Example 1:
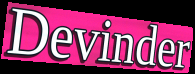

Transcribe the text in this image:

Devinder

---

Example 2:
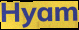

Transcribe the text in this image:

Hyam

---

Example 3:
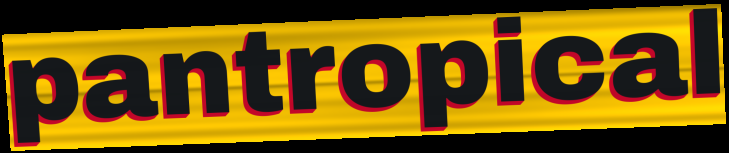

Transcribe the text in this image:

pantropical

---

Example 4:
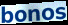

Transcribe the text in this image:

bonos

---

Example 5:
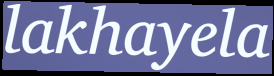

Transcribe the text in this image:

lakhayela